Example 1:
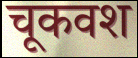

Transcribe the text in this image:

चूकवश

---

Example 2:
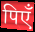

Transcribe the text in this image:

पिएँ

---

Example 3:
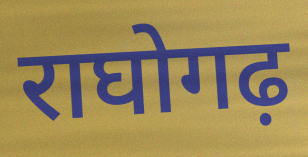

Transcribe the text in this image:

राघोगढ़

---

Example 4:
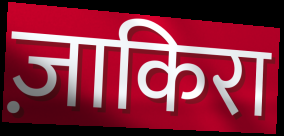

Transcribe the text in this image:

ज़ाकिरा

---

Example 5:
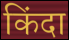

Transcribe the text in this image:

किंदा